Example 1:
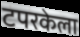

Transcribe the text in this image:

टपरकेला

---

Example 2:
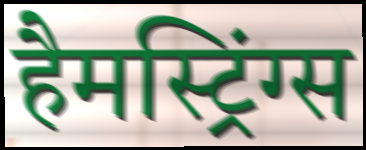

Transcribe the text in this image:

हैमस्ट्रिंग्स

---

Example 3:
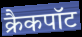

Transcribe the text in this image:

क्रैकपॉट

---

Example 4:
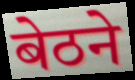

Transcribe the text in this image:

बेठने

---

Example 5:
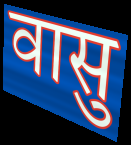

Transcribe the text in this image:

वासु